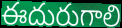
ఈదురుగాలి